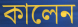
কালেন